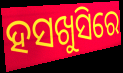
ହସଖୁସିରେ